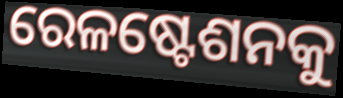
ରେଳଷ୍ଟେଶନକୁ